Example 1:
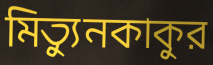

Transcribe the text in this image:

মিত্যুনকাকুর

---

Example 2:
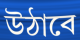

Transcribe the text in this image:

উঠাবে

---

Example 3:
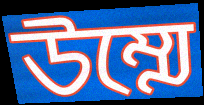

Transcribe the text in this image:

উম্মে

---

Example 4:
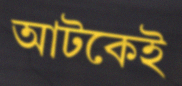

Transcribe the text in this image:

আটকেই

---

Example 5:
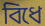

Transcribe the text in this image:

বিধে